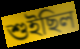
শুইছিল